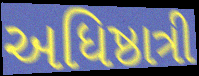
અધિષ્ઠાત્રી